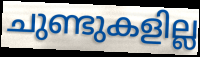
ചുണ്ടുകളില്ല